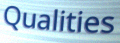
Qualities